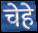
चेहे